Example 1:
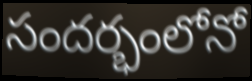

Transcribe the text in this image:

సందర్భంలోనో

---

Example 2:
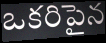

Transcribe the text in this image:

ఒకరిపైన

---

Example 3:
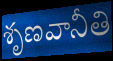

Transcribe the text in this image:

శృణవానీతి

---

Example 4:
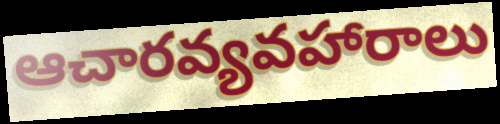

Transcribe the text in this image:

ఆచారవ్యవహారాలు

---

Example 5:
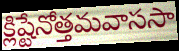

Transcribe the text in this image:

క్లిష్టేనోత్తమవాససా